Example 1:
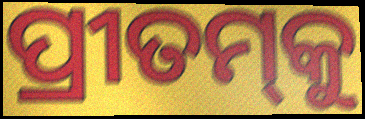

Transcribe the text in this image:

ପ୍ରୀତମ୍‌କୁ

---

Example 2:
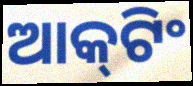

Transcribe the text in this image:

ଆକ୍‌ଟିଂ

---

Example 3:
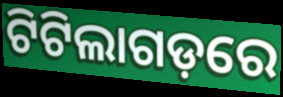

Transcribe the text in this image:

ଟିଟିଲାଗଡ଼ରେ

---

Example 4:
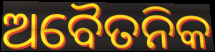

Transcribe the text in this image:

ଅବୈତନିକ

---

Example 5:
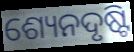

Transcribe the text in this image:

ଶ୍ୟେନଦୃଷ୍ଟି